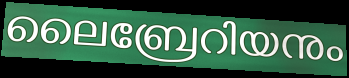
ലൈബ്രേറിയനും